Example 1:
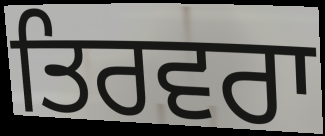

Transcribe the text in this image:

ਤਿਰਵਰਾ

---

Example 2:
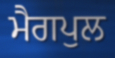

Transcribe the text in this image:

ਮੈਗਪੁਲ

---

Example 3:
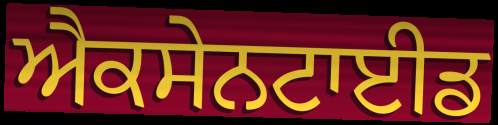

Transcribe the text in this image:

ਐਕਸੇਨਟਾਈਡ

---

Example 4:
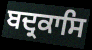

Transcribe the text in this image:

ਬਦ੍ਰਕਾਸਿ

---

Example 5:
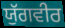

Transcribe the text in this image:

ਯੁੱਗਵੀਰ